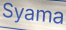
Syama